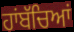
ਹਾਂਬੱਚਿਆਂ